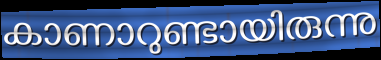
കാണാറുണ്ടായിരുന്നു